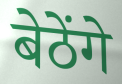
बेठेंगे